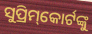
ସୁପ୍ରିମ୍‌କୋର୍ଟଙ୍କୁ